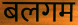
बलगम